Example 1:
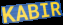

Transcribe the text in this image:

KABIR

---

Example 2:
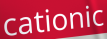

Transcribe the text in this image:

cationic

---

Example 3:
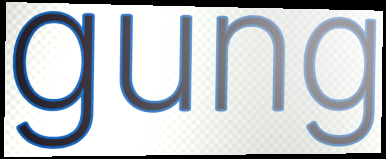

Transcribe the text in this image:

gung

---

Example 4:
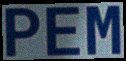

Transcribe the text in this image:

PEM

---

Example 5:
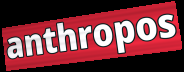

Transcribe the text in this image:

anthropos